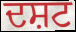
ਦਸ਼ਟ